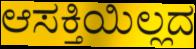
ಆಸಕ್ತಿಯಿಲ್ಲದ